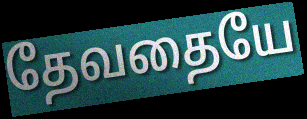
தேவதையே